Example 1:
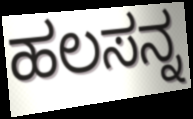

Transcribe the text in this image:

ಹಲಸನ್ನ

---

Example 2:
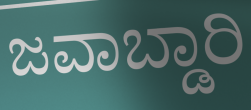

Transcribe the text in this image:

ಜವಾಬ್ಡಾರಿ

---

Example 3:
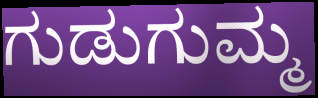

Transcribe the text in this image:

ಗುಡುಗುಮ್ಮ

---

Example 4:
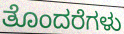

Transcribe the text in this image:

ತೊಂದರೆಗಳು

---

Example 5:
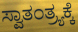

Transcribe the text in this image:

ಸ್ವಾತಂತ್ರ್ಯಕ್ಕೆ